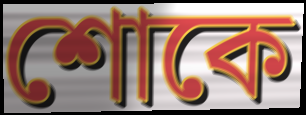
শোকে